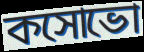
কসোভো